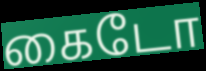
கைடோ